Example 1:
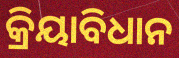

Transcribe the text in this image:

କ୍ରିୟାବିଧାନ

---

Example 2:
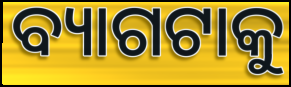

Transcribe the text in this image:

ବ୍ୟାଗଟାକୁ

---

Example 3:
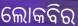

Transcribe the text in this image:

ଲୋକବିର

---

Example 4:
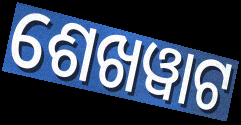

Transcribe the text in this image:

ଶେଖୱାଟ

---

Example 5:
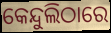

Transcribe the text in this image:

କେନ୍ଦୁଲିଠାରେ